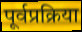
पूर्वप्रक्रिया